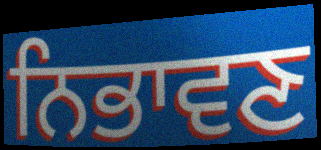
ਨਿਭਾਵਣ